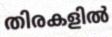
തിരകളിൽ